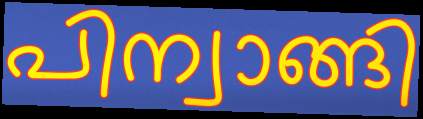
പിന്വാങ്ങി